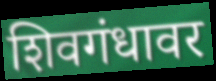
शिवगंधावर